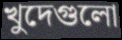
খুদেগুলো